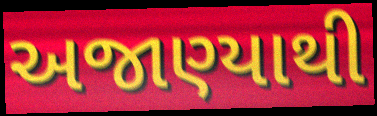
અજાણ્યાથી